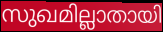
സുഖമില്ലാതായി